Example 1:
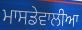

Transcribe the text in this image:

ਮਾਸਡੇਵਾਲੀਆ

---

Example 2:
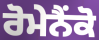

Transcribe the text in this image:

ਰੋਮੇਨੈਂਕੋ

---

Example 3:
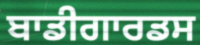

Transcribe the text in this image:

ਬਾਡੀਗਾਰਡਸ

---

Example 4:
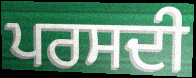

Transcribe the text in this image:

ਪਰਸਦੀ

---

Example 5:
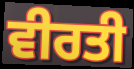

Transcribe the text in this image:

ਵੀਰਤੀ